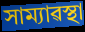
সাম্যাৱস্থা